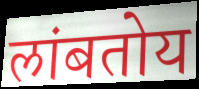
लांबतोय